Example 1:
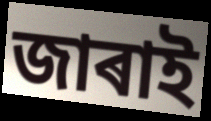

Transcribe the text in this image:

জাৰাই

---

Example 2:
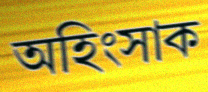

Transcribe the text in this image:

অহিংসাক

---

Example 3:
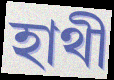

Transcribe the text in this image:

হাথী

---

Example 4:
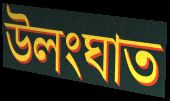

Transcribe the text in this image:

উলংঘাত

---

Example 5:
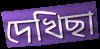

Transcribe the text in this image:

দেখিছা